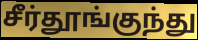
சீர்தூங்குந்து